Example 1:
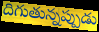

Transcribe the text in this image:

దిగుతున్నప్పుడు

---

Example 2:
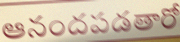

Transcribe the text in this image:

ఆనందపడతారో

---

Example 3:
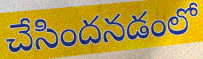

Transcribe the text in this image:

చేసిందనడంలో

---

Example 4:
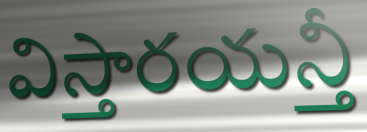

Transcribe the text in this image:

విస్తారయన్తీ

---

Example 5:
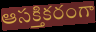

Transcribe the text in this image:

ఆసక్తికరంగా